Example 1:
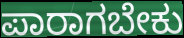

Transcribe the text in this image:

ಪಾರಾಗಬೇಕು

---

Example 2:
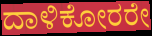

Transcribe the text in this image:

ದಾಳಿಕೋರರೇ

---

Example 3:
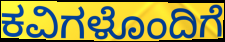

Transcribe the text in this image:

ಕವಿಗಳೊಂದಿಗೆ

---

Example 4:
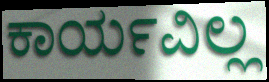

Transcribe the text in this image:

ಕಾರ್ಯವಿಲ್ಲ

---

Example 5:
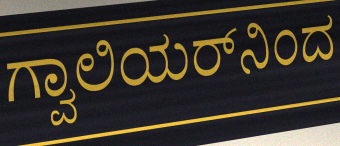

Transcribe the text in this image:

ಗ್ವಾಲಿಯರ್‌ನಿಂದ